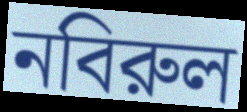
নবিরুল